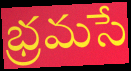
భ్రమసే